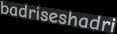
badriseshadri